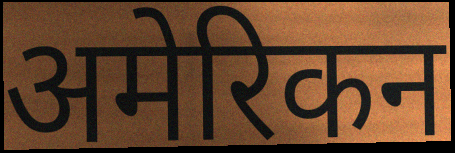
अमेरिकन